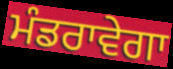
ਮੰਡਰਾਵੇਗਾ